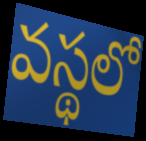
వస్థలో